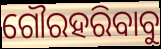
ଗୌରହରିବାବୁ